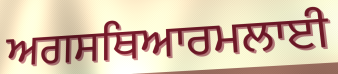
ਅਗਸਥਿਆਰਮਲਾਈ